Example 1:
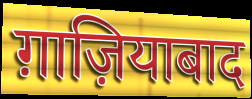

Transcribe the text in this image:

ग़ाज़ियाबाद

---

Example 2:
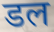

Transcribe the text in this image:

डल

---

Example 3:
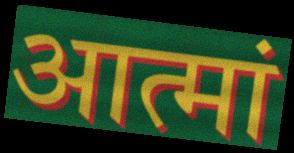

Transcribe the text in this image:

आत्मां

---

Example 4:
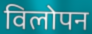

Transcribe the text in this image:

विलोपन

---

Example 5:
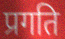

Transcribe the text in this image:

प्रगति